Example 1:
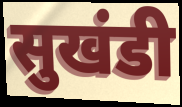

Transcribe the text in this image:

सुखंडी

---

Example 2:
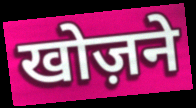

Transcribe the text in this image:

खोज़ने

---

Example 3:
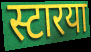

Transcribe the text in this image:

स्टारया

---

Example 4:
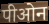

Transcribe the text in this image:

पीओन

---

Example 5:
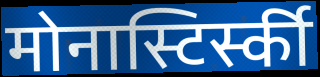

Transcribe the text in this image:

मोनास्टिर्स्की